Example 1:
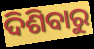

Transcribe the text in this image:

ଦିଶିବାରୁ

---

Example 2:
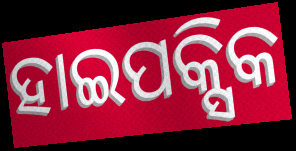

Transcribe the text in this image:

ହାଇପକ୍ସିକ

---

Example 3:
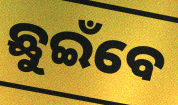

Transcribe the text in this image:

ଛୁଇଁବେ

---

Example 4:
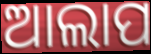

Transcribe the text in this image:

ଆଲାପ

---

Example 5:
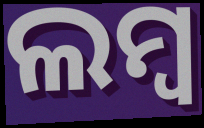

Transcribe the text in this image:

ଲମ୍ବ